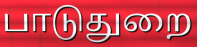
பாடுதுறை